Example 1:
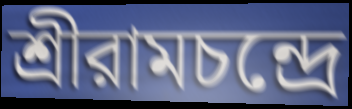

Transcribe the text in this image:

শ্রীরামচন্দ্রে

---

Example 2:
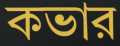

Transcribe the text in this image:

কভার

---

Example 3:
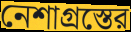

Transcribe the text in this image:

নেশাগ্রস্তের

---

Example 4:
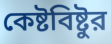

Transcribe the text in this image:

কেষ্টবিষ্টুর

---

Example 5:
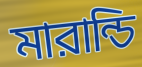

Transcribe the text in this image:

মারান্ডি